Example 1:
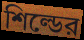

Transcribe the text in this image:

শিল্ডের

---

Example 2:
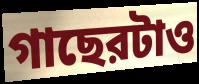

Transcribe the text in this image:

গাছেরটাও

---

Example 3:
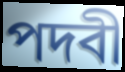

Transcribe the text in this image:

পদবী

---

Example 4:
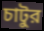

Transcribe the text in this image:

চাটুর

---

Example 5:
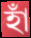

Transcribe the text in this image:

হাঁ